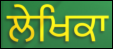
ਲੇਖਿਕਾ